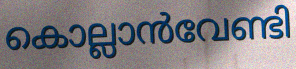
കൊല്ലാൻവേണ്ടി